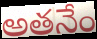
అతనేం